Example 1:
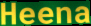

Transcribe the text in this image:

Heena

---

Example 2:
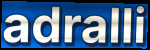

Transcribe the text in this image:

adralli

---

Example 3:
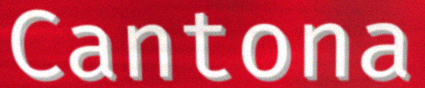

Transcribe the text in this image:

Cantona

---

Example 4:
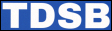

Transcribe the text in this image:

TDSB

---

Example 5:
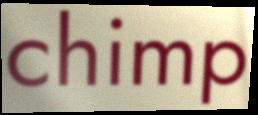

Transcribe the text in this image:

chimp